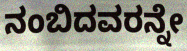
ನಂಬಿದವರನ್ನೇ